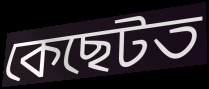
কেছেটত